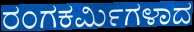
ರಂಗಕರ್ಮಿಗಳಾದ